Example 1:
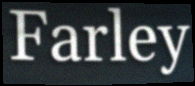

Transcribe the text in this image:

Farley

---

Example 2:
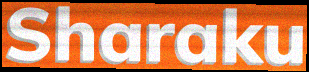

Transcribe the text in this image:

Sharaku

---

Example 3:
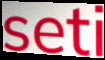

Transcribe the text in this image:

seti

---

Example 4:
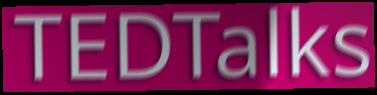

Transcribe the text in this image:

TEDTalks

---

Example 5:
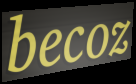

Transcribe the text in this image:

becoz